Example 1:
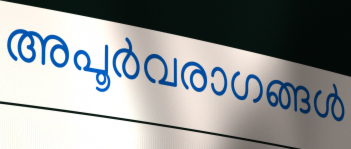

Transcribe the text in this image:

അപൂർവരാഗങ്ങൾ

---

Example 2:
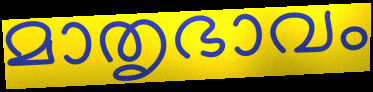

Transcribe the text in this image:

മാതൃഭാവം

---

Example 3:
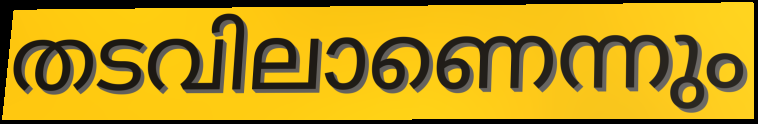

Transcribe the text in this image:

തടവിലാണെന്നും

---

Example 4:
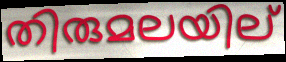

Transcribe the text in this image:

തിരുമലയില്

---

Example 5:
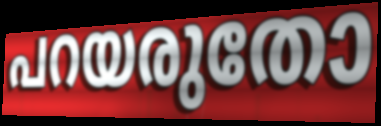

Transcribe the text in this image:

പറയരുതോ